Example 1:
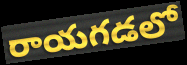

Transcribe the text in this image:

రాయగడలో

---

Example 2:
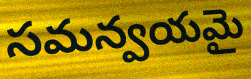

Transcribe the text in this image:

సమన్వయమై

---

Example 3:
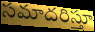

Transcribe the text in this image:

సమాదరిస్తూ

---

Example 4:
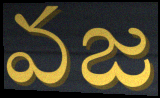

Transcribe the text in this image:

వజ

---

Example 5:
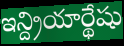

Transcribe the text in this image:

ఇన్ద్రియార్థేషు